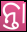
ନ୍ତା